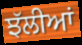
ਝੱਲੀਆਂ